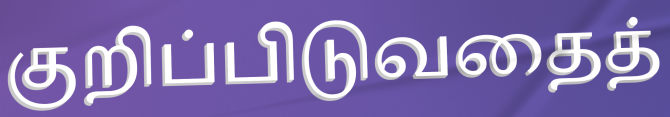
குறிப்பிடுவதைத்